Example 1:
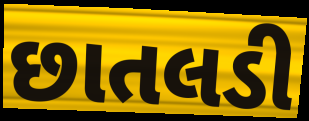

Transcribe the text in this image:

છાતલડી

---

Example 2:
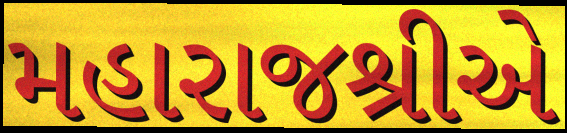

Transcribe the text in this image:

મહારાજશ્રીએ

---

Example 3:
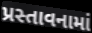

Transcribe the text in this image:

પ્રસ્તાવનામાં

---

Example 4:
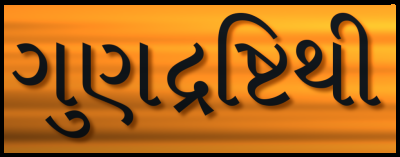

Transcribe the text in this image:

ગુણદ્રષ્ટિથી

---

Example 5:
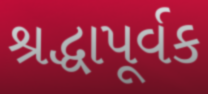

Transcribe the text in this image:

શ્રદ્ધાપૂર્વક